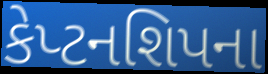
કેપ્ટનશિપના